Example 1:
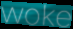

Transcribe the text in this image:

woke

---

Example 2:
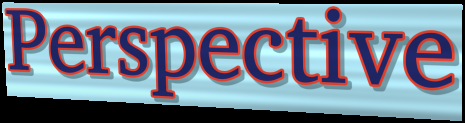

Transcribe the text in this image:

Perspective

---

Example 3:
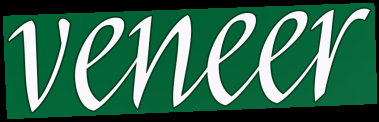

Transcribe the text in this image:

veneer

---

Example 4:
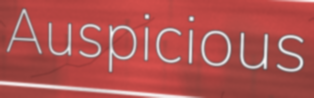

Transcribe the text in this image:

Auspicious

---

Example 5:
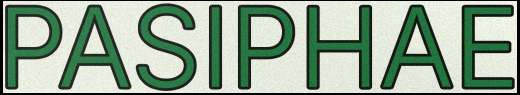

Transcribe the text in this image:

PASIPHAE